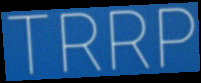
TRRP